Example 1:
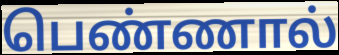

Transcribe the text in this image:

பெண்ணால்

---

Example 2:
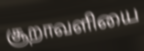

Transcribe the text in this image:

சூறாவளியை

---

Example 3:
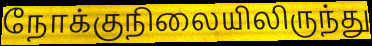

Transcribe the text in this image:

நோக்குநிலையிலிருந்து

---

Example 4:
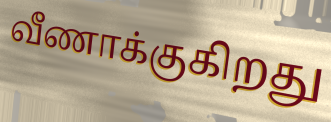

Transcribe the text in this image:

வீணாக்குகிறது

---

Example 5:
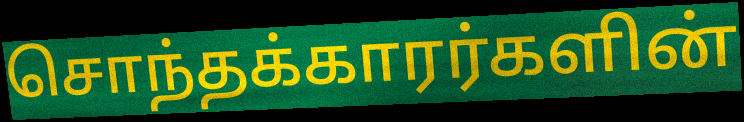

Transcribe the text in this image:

சொந்தக்காரர்களின்